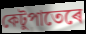
কেটুপাতেৰে